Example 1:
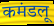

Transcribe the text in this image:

कमंडलू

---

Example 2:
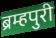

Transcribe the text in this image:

ब्रम्हपुरी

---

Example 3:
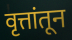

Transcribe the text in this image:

वृत्तांतून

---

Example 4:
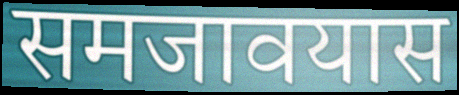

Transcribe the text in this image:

समजावयास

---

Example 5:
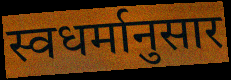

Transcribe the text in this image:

स्वधर्मानुसार